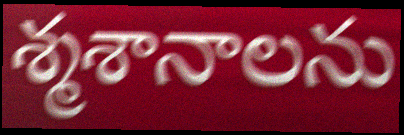
శ్మశానాలను